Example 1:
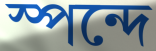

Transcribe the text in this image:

স্পন্দে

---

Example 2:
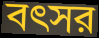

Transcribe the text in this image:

বৎসর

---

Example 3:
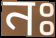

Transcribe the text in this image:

নঃ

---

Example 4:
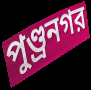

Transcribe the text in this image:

পুণ্ড্রনগর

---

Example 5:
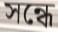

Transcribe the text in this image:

সন্ধে